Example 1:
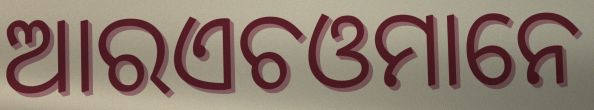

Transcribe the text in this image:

ଆରଏଚଓମାନେ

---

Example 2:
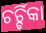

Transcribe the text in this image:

ଚର୍ଚ୍ଚିକା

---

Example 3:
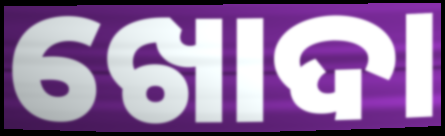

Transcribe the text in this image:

ଖୋଦା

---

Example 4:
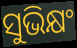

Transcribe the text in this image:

ସୁଭିକ୍ଷଂ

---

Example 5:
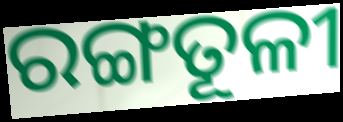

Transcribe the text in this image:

ରଙ୍ଗତୂଳୀ